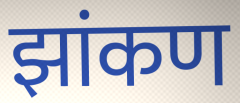
झांकण